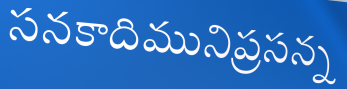
సనకాదిమునిప్రసన్న